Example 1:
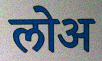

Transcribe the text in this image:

लोअ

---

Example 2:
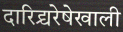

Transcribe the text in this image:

दारिद्र्यरेषेखाली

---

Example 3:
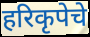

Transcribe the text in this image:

हरिकृपेचे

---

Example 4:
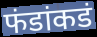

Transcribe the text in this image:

फंडांकडं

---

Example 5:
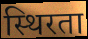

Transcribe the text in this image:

स्थिरता